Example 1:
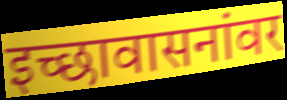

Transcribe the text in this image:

इच्छावासनांवर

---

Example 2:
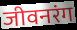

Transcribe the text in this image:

जीवनरंग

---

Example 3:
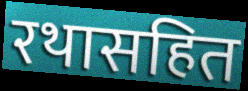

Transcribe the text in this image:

रथासहित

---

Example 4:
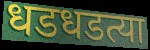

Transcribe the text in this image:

धडधडत्या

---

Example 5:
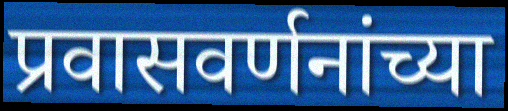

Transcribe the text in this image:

प्रवासवर्णनांच्या